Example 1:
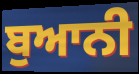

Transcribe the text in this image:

ਬੁਆਨੀ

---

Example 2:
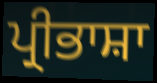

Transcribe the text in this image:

ਪ੍ਰੀਭਾਸ਼ਾ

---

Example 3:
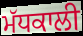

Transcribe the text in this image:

ਮੱਧਕਾਲੀ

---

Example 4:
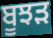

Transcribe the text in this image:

ਬੂਝੜ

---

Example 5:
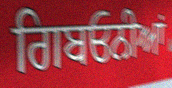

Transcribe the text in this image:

ਗਿਬਓਨੀਆਂ